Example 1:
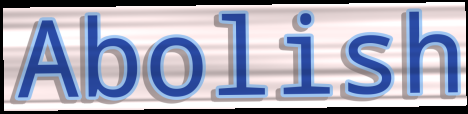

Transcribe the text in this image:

Abolish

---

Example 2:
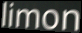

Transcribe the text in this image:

limon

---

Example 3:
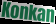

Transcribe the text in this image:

Konkan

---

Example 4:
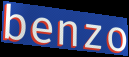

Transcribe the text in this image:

benzo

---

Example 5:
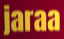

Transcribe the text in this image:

jaraa